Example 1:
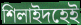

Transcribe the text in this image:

শিলাইদহেই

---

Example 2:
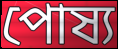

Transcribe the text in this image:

পোষ্য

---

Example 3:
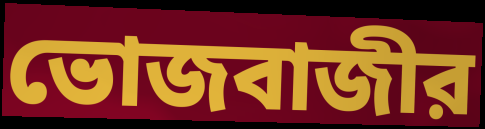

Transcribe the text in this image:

ভোজবাজীর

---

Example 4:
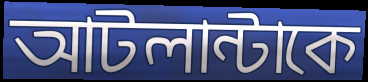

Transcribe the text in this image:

আটলান্টাকে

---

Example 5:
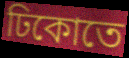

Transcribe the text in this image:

ঢিকোতে